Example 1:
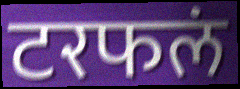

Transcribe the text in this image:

टरफलं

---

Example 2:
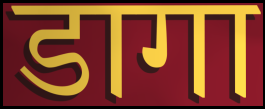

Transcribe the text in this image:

डागा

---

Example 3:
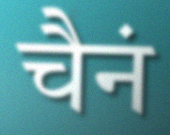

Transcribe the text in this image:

चैनं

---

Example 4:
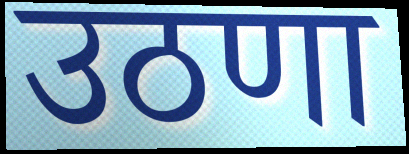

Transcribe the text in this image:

उठणा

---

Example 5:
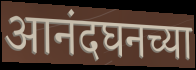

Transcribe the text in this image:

आनंदघनच्या